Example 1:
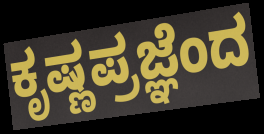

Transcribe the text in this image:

ಕೃಷ್ಣಪ್ರಜ್ಞೆಂದ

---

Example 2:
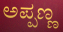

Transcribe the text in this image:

ಅಪ್ಪಣ್ಣ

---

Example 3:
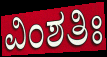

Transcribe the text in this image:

ವಿಂಶತಿಃ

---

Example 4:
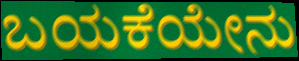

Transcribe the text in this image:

ಬಯಕೆಯೇನು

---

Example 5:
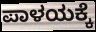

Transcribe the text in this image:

ಪಾಳಯಕ್ಕೆ